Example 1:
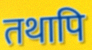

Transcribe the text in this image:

तथापि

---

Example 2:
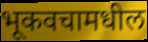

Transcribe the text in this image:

भूकवचामधील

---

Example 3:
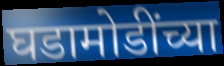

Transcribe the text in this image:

घडामोडींच्या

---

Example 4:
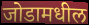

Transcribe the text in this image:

जोडामधील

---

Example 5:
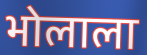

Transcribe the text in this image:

भोलाला